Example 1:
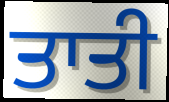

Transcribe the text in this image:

ਤਾਤੀ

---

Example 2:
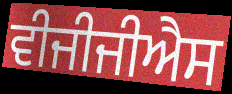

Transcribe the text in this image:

ਵੀਜੀਜੀਐਸ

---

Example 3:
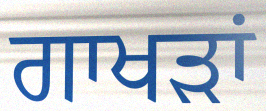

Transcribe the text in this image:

ਗਾਖੜਾਂ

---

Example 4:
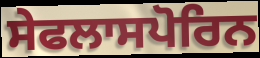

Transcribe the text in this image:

ਸੇਫਲਾਸਪੋਰਿਨ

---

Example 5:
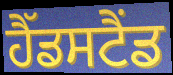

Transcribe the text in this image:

ਹੈੱਡਸਟੈਂਡ